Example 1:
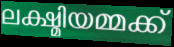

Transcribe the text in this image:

ലക്ഷ്മിയമ്മക്ക്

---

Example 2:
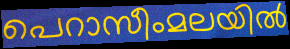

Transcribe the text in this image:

പെറാസീംമലയിൽ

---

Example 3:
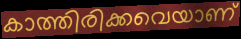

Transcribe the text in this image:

കാത്തിരിക്കവെയാണ്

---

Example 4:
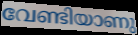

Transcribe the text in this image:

വേണ്ടിയാണു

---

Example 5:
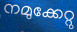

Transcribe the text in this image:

നമുക്കേറ്റു